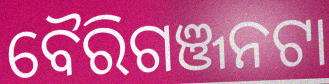
ବୈରିଗଞ୍ଜନଟା